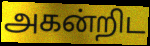
அகன்றிட